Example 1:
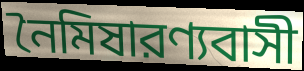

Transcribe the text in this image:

নৈমিষারণ্যবাসী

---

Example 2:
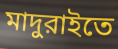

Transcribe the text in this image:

মাদুরাইতে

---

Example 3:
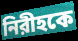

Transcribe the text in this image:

নিরীহকে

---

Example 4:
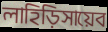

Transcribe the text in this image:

লাহিড়িসায়েব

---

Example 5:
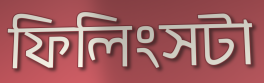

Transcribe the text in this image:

ফিলিংসটা